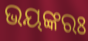
ଭୟଙ୍କରଃ